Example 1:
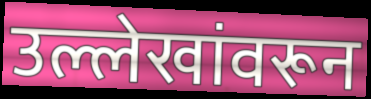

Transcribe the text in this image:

उल्लेखांवरून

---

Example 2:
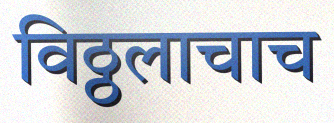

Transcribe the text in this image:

विठ्ठलाचाच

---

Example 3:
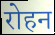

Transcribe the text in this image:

रोहन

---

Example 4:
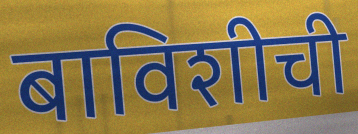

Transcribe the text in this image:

बाविशीची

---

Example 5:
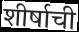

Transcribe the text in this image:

शीर्षाची